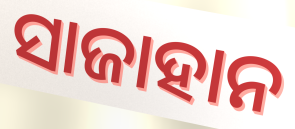
ସାଜାହାନ